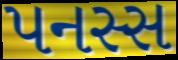
પનસ્સ